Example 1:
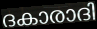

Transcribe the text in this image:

ദകാരാദി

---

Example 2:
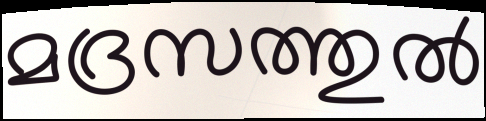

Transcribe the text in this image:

മദ്രസത്തുൽ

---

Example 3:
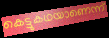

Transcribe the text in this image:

കെട്ടുകഥയാണെന്ന്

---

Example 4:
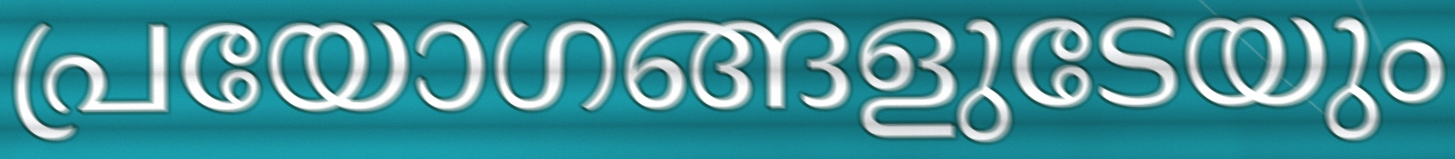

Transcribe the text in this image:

പ്രയോഗങ്ങളുടേയും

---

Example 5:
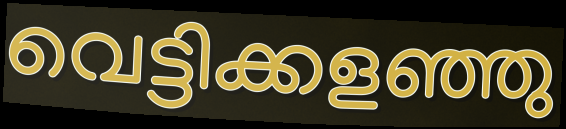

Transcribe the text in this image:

വെട്ടിക്കളഞ്ഞു